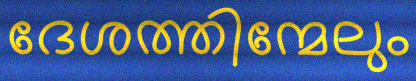
ദേശത്തിന്മേലും